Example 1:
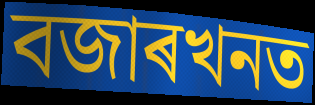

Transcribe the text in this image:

বজাৰখনত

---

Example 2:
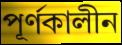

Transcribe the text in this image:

পূৰ্ণকালীন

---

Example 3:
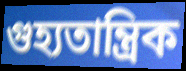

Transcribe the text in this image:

গুহ্যতান্ত্ৰিক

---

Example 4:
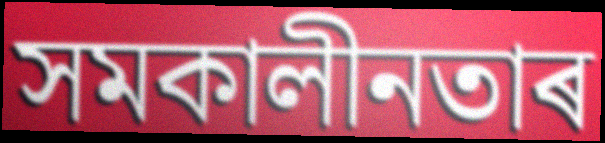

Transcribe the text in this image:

সমকালীনতাৰ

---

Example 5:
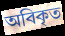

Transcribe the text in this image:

অবিকৃত